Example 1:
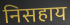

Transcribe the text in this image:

निसहाय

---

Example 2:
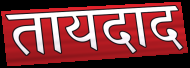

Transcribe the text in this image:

तायदाद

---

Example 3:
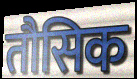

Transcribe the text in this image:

तौसिक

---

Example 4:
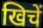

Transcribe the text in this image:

खिचें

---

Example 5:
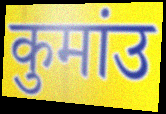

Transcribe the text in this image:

कुमांउ